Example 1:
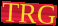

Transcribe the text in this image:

TRG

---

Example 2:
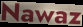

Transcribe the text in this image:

Nawaz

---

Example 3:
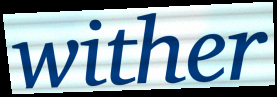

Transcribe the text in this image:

wither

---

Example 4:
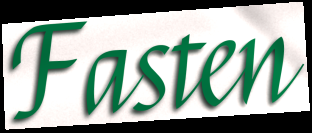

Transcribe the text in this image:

Fasten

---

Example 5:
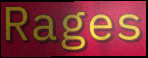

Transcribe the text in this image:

Rages